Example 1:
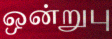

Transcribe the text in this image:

ஒன்றுபு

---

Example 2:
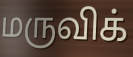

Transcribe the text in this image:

மருவிக்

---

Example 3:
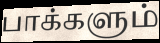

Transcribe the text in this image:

பாக்களும்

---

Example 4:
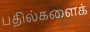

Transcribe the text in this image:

பதில்களைக்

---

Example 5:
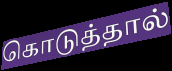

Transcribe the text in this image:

கொடுத்தால்